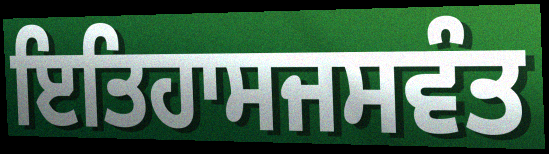
ਇਤਿਹਾਸਜਸਵੰਤ